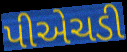
પીએચડી